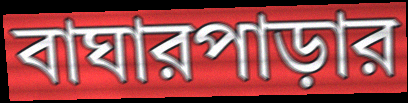
বাঘারপাড়ার